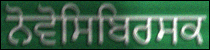
ਨੋਵੋਸਿਬਿਰਸਕ